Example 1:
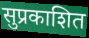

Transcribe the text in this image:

सुप्रकाशित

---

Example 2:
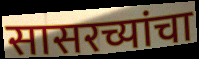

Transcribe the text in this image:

सासरच्यांचा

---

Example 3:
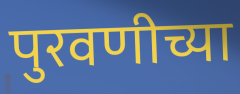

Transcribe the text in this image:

पुरवणीच्या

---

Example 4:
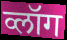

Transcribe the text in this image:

व्लॉग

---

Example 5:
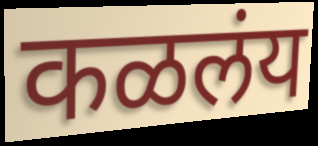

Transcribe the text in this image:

कळलंय